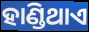
ହାଣ୍ଡିଥାଏ